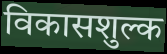
विकासशुल्क